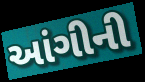
આંગીની